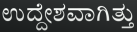
ಉದ್ದೇಶವಾಗಿತ್ತು